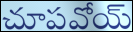
చూపవోయ్